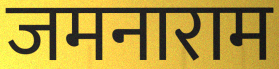
जमनाराम